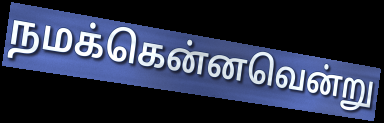
நமக்கென்னவென்று